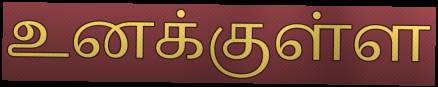
உனக்குள்ள